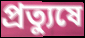
প্রত্যুষে